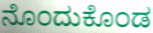
ನೊಂದುಕೊಂಡ